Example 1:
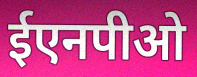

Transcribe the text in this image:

ईएनपीओ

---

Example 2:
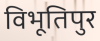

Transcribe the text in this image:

विभूतिपुर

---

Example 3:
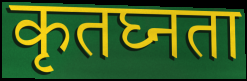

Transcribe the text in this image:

कृतघ्नता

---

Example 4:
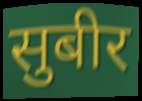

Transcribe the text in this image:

सुबीर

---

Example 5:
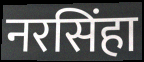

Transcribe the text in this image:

नरसिंहा